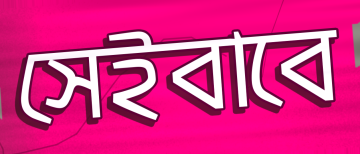
সেইবাবে